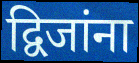
द्विजांना